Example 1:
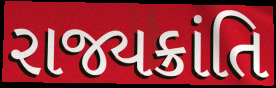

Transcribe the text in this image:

રાજ્યક્રાંતિ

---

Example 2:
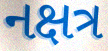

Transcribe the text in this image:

નક્ષત્ર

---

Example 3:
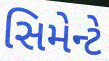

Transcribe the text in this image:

સિમેન્ટે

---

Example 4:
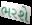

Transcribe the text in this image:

ભરશે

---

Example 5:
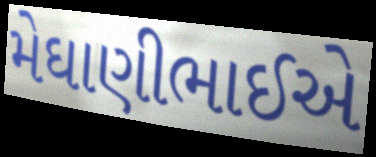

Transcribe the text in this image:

મેઘાણીભાઈએ